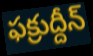
ఫక్రుద్దీన్